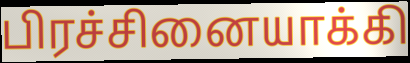
பிரச்சினையாக்கி